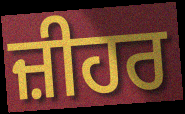
ਜ਼ੀਹਰ